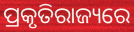
ପ୍ରକୃତିରାଜ୍ୟରେ